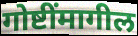
गोष्टींमागील